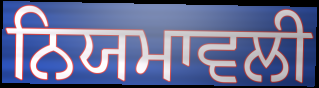
ਨਿਯਮਾਵਲੀ